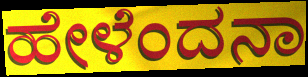
ಹೇಳೆಂದನಾ